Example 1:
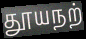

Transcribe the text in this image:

தூயநற்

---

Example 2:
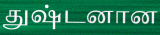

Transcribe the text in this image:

துஷ்டனான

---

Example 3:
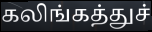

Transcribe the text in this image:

கலிங்கத்துச்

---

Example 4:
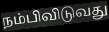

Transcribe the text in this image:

நம்பிவிடுவது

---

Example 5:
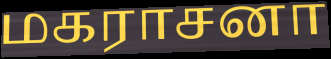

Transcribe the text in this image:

மகராசனா